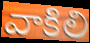
వాకిలి